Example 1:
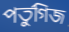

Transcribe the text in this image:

পর্তুগিজ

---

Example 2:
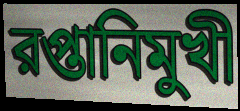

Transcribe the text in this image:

রপ্তানিমুখী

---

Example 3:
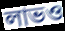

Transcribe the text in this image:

লাভও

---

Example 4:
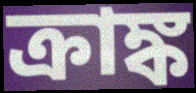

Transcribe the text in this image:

ক্রাঙ্ক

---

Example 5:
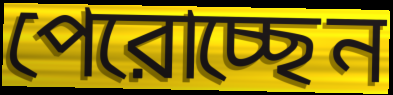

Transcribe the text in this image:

পেরোচ্ছেন